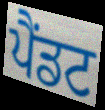
ਪੈਂਡਟ